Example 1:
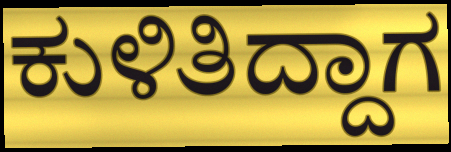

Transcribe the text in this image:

ಕುಳಿತಿದ್ದಾಗ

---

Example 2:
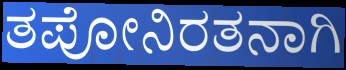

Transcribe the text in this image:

ತಪೋನಿರತನಾಗಿ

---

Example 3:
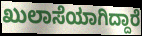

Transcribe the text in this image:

ಖುಲಾಸೆಯಾಗಿದ್ದಾರೆ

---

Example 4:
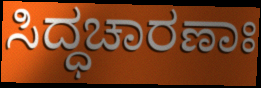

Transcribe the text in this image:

ಸಿದ್ಧಚಾರಣಾಃ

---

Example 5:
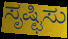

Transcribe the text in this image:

ಸೃಷ್ಟಿಸು